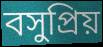
বসুপ্রিয়